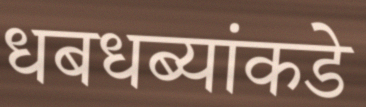
धबधब्यांकडे